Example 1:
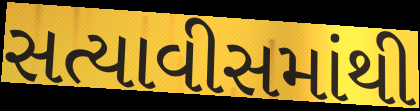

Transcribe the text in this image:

સત્યાવીસમાંથી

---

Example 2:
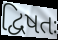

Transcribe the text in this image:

દ્વિષતઃ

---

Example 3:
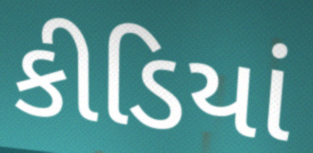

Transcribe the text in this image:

કીડિયાં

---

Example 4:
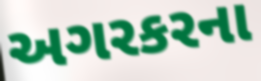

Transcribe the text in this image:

અગરકરના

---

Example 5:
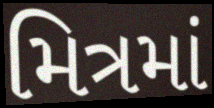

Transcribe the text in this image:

મિત્રમાં